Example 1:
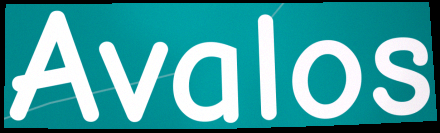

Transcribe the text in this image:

Avalos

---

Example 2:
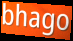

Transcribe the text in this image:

bhago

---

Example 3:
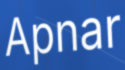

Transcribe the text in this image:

Apnar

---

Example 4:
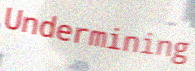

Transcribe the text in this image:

Undermining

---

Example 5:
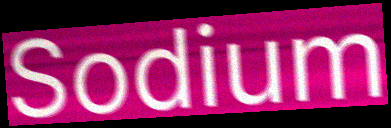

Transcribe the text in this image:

Sodium